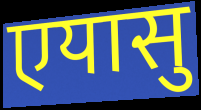
एयासु